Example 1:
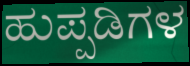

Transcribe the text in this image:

ಹುಪ್ಪಡಿಗಳ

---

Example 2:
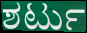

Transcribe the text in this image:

ಶರ್ಟು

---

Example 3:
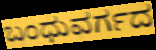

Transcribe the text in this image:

ಬಂಧುವರ್ಗದ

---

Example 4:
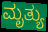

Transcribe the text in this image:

ಮೃತ್ಯು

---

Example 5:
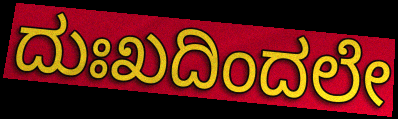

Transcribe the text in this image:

ದುಃಖದಿಂದಲೇ